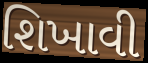
શિખાવી